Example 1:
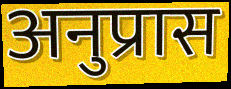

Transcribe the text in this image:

अनुप्रास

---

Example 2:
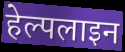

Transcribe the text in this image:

हेल्पलाइन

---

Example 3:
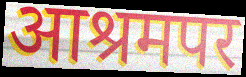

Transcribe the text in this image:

आश्रमपर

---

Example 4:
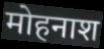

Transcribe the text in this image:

मोहनाश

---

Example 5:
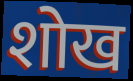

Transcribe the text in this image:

शोख